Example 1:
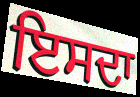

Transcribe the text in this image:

ਇਸਦਾ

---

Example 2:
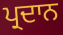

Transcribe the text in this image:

ਪ੍ਰਦਾਨ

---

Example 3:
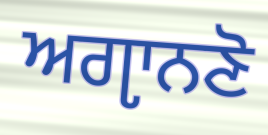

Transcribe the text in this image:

ਅਗੵਾਨਣੋ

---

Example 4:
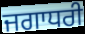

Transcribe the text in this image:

ਜਗਾਧਰੀ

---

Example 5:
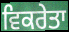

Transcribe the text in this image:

ਵਿਕਰੇਤਾ